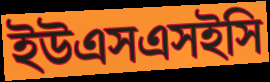
ইউএসএসইসি